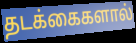
தடக்கைகளால்